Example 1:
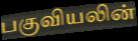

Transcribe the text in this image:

பகுவியலின்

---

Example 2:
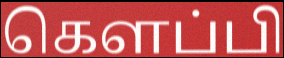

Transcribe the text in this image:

கெளப்பி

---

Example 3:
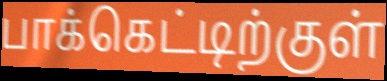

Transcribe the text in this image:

பாக்கெட்டிற்குள்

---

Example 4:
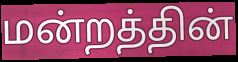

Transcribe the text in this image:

மன்றத்தின்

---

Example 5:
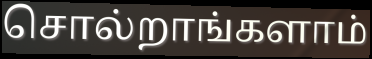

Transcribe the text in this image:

சொல்றாங்களாம்